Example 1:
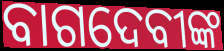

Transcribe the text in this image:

ବାଗଦେବୀଙ୍କ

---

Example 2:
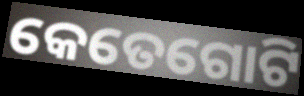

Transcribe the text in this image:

କେତେଗୋଟି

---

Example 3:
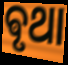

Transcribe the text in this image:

ଵୃଥା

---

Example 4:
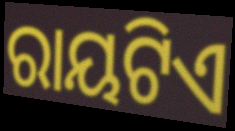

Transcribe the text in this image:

ରାୟଟିଏ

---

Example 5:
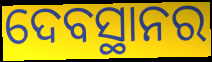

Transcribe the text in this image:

ଦେବସ୍ଥାନର